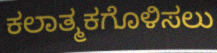
ಕಲಾತ್ಮಕಗೊಳಿಸಲು